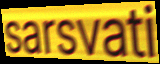
sarsvati